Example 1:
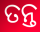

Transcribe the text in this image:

ତନ୍ତ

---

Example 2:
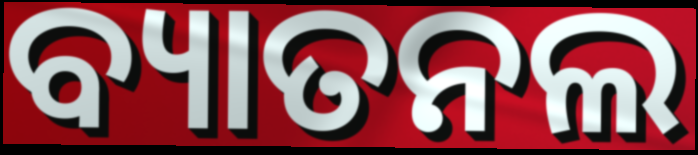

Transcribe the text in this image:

ବ୍ୟାତନଲ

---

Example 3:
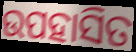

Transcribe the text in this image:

ଉପହାସିତ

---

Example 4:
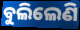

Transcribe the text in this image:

ବୁଲିଲେଣି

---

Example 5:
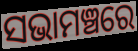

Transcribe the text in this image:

ସଭାମଞ୍ଚରେ